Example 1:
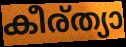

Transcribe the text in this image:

കീര്ത്യാ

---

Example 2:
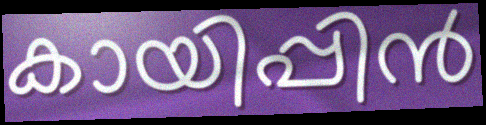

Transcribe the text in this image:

കായിപ്പിൻ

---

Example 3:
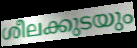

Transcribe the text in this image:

ശീലക്കുടയും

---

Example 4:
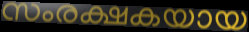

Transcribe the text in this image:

സംരക്ഷകയായ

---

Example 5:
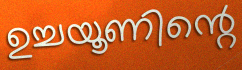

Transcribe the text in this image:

ഉച്ചയൂണിന്റെ